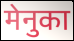
मेनुका